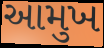
આમુખ